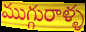
ముగ్గురాళ్ళ